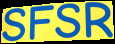
SFSR